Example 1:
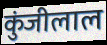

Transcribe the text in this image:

कुंजीलाल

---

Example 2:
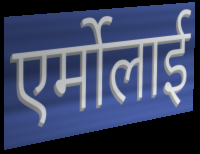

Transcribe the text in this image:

एर्मोलाई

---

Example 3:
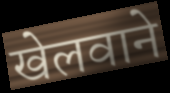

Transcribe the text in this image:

खेलवाने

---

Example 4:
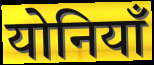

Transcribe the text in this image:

योनियाँ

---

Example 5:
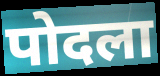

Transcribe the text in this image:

पोदला